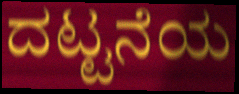
ದಟ್ಟನೆಯ